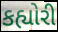
કહ્યોરી